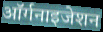
ऑर्गनाइजेशन